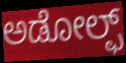
ಅಡೋಲ್ಫ್